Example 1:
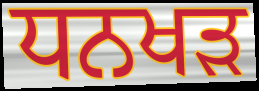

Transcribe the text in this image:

ਧਨਖੜ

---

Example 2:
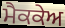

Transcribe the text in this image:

ਮੈਕਕੇਅ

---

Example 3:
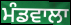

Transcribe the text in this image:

ਮੰਡਵਾਲਾ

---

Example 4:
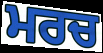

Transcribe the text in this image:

ਮਰਚ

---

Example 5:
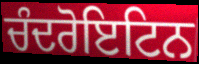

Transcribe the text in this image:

ਚੰਦਰੋਇਟਿਨ